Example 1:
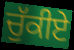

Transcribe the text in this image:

ਚੁੱਕੀਏ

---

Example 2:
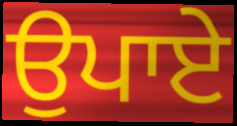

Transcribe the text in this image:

ਉਪਾਏ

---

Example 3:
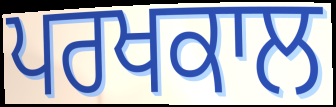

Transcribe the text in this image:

ਪਰਖਕਾਲ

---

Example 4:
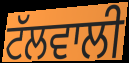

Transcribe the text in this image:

ਟੱਲਵਾਲੀ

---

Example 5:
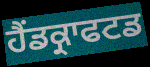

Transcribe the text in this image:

ਹੈਂਡਕ੍ਰਾਫਟਡ